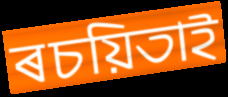
ৰচয়িতাই